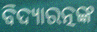
ବିଦ୍ୟାରତ୍ନଙ୍କ